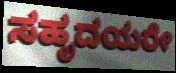
ಸಹೃದಯರೇ